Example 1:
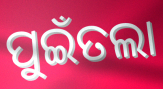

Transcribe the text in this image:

ପୁଇଁତଲା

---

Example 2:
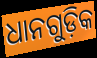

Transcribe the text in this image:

ଧାନଗୁଡ଼ିକ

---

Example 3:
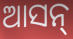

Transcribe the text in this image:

ଆସନ୍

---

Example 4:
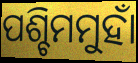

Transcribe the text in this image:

ପଶ୍ଚିମମୁହାଁ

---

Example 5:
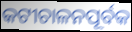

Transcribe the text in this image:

କଟୀଚାଳନପୂର୍ବକ